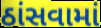
ઠાંસવામાં